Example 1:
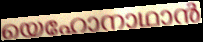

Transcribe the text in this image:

യെഹോനാഥാൻ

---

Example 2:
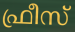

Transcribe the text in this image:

ഫ്രീസ്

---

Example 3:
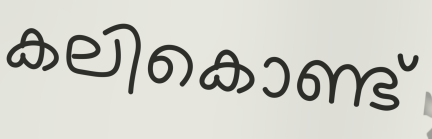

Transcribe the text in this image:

കലികൊണ്ട്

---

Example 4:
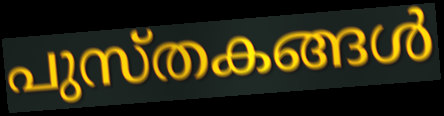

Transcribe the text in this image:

പുസ്തകങ്ങൾ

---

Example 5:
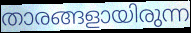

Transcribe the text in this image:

താരങ്ങളായിരുന്ന